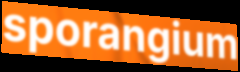
sporangium